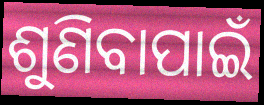
ଶୁଣିବାପାଇଁ